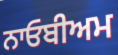
ਨਾਓਬੀਅਮ